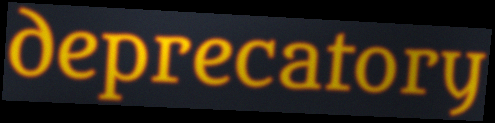
deprecatory